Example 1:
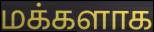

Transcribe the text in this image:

மக்களாக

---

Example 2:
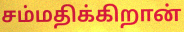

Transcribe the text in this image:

சம்மதிக்கிறான்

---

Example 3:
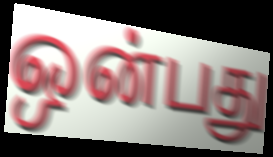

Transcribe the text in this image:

ஒன்பது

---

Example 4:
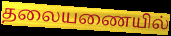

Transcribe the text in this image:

தலையணையில்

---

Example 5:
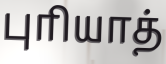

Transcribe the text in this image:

புரியாத்